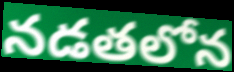
నడతలోన